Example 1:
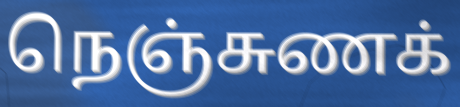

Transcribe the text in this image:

நெஞ்சுணக்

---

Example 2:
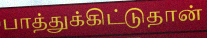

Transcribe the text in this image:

பாத்துக்கிட்டுதான்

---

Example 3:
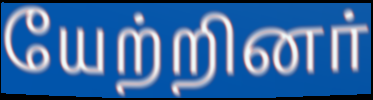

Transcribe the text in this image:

யேற்றினர்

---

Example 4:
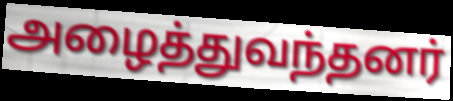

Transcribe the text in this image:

அழைத்துவந்தனர்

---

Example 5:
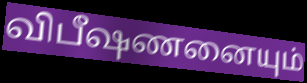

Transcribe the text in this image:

விபீஷணனையும்